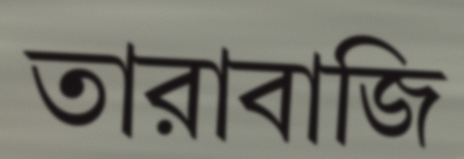
তারাবাজি